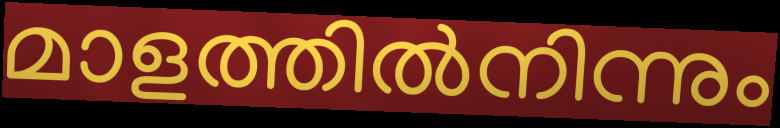
മാളത്തിൽനിന്നും